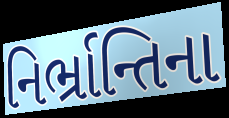
નિર્ભ્રાન્તિના